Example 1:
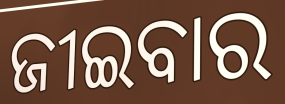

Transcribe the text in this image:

ଜୀଇବାର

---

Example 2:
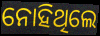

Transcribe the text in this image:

ନୋହିଥିଲେ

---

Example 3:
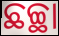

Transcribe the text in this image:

ଛଚ୍ଛା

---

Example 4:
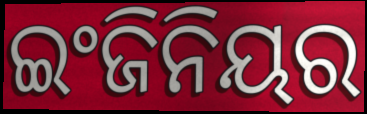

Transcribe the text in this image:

ଇଂଜିନିୟର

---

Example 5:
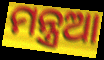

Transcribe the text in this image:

ମନ୍ତ୍ରଆ